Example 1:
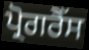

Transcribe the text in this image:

ਪ੍ਰੋਗਰੈੱਸ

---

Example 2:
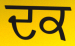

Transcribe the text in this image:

ਦਕ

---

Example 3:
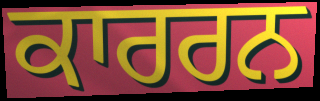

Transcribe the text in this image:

ਕਾਰਰਨ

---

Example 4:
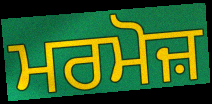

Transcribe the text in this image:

ਮਰਮੋਜ਼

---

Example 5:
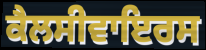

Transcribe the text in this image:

ਕੈਲਸੀਵਾਇਰਸ